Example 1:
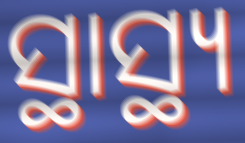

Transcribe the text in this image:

ସ୍ଥାସ୍ଥ୍ୟ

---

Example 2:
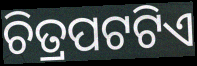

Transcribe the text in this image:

ଚିତ୍ରପଟଟିଏ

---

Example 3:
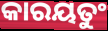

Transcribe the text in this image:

କାରୟତୁଂ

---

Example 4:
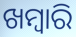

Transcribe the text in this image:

ଖମ୍ୱାରି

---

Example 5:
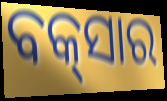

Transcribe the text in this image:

ବକ୍‌ସାର